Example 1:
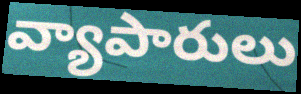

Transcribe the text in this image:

వ్యాపారులు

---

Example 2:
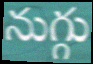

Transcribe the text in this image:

నుగ్గు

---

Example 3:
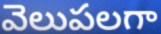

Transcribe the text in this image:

వెలుపలగా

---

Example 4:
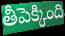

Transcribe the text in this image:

తీపెక్కింది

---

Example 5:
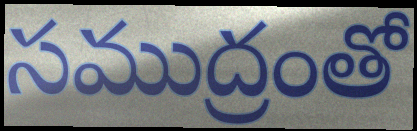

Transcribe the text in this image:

సముద్రంతో